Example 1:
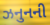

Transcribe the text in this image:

ઝનુનની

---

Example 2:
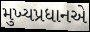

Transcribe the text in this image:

મુખ્યપ્રધાનએ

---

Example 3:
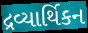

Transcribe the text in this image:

દ્રવ્યાર્થિકન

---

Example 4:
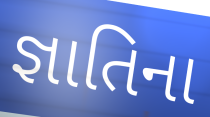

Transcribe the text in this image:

જ્ઞાતિના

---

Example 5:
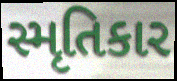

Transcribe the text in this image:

સ્મૃતિકાર